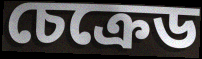
চেক্ৰেড